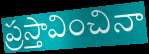
ప్రస్తావించినా